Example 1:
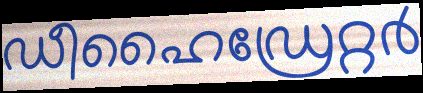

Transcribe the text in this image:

ഡീഹൈഡ്രേറ്റർ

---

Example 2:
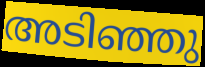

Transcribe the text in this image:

അടിഞ്ഞു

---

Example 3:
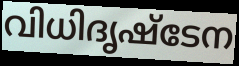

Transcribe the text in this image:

വിധിദൃഷ്ടേന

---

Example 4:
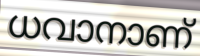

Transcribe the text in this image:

ധവാനാണ്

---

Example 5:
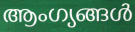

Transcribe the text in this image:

ആംഗ്യങ്ങൾ